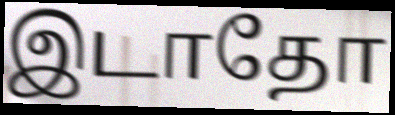
இடாதோ